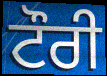
ਟੌਰੀ